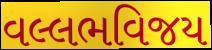
વલ્લભવિજય